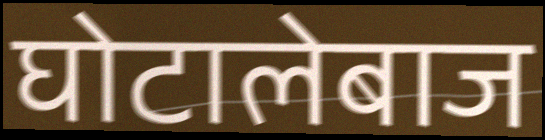
घोटालेबाज